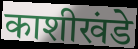
काशीखंडे